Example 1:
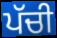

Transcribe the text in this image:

ਪੱਚੀ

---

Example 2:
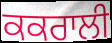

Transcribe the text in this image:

ਕਕਰਾਲੀ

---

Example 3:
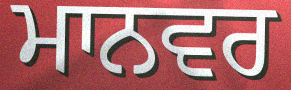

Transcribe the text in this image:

ਮਾਨਵਰ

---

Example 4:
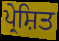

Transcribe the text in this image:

ਪ੍ਰੇਸ਼ਿਤ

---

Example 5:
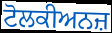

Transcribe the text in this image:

ਟੋਲਕੀਅਨਜ਼